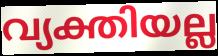
വ്യക്തിയല്ല